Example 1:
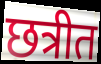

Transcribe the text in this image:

छत्रीत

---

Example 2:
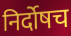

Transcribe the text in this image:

निर्दोषच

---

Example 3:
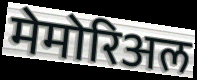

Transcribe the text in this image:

मेमोरिअल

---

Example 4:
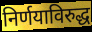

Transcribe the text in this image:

निर्णयाविरुद्ध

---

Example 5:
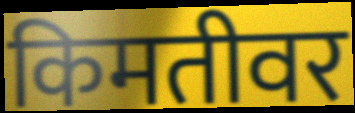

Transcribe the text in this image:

किमतीवर